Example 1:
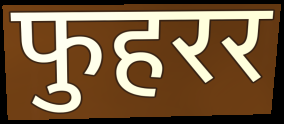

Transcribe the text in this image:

फुहरर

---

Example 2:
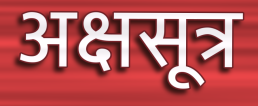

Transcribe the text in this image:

अक्षसूत्र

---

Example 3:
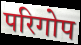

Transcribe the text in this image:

परिगोप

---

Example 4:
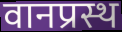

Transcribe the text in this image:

वानप्रस्थ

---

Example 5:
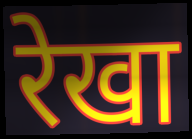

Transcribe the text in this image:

रेखा